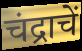
चंद्राचें